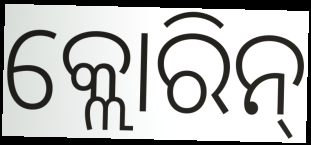
କ୍ଲୋରିନ୍